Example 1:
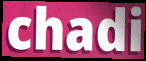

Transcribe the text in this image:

chadi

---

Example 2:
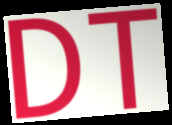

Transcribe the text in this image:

DT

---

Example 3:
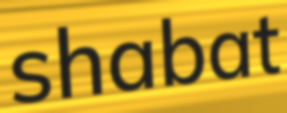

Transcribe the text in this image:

shabat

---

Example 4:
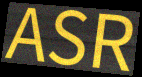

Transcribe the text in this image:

ASR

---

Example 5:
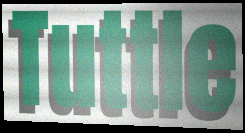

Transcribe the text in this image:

Tuttle